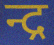
न्द्र